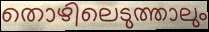
തൊഴിലെടുത്താലും